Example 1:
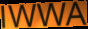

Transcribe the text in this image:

IWWA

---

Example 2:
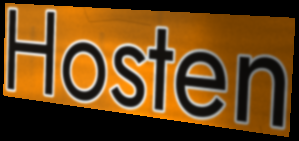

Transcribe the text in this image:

Hosten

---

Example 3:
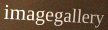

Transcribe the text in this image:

imagegallery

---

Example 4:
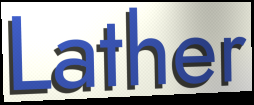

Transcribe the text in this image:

Lather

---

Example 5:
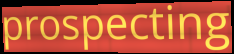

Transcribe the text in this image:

prospecting